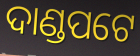
ଦାଣ୍ଡପଟେ